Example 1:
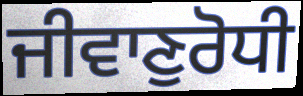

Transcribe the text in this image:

ਜੀਵਾਣੁਰੋਧੀ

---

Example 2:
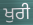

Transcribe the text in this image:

ਖੁਰੀ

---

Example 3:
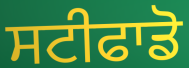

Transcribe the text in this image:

ਸਟੀਫਾਡੋ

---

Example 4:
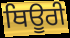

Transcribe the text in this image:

ਥਿਊਰੀ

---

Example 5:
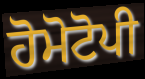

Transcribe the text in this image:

ਹੋਮੋਟੋਪੀ